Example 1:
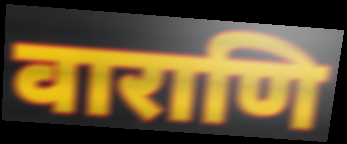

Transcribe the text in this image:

वाराणि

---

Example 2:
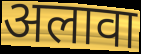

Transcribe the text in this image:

अलावा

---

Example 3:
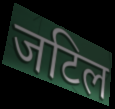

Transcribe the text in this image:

जटिल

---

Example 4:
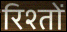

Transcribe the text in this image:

रिश्तों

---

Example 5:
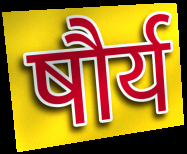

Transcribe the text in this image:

षौर्य